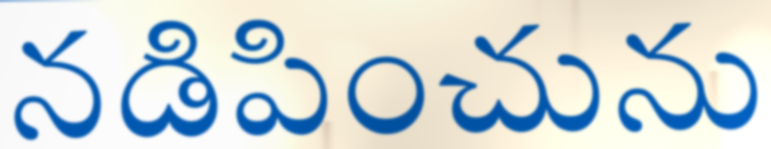
నడిపించును